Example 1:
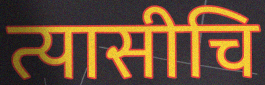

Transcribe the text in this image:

त्यासीचि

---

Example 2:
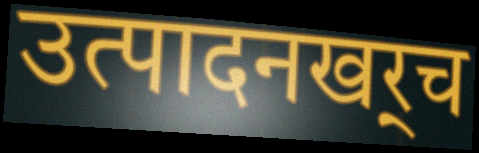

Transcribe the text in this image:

उत्पादनखर्च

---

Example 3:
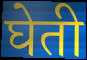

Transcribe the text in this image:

घेती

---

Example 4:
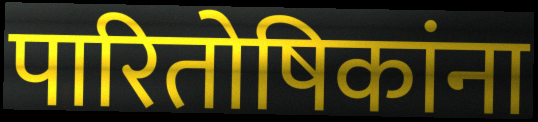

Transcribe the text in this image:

पारितोषिकांना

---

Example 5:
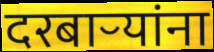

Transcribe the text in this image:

दरबाऱ्यांना